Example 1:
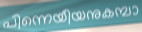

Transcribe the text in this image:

പിന്നെയീയനുകമ്പാ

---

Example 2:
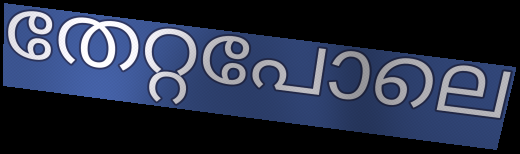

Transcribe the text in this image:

തേറ്റപോലെ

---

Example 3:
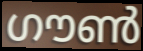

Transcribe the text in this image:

ഗൗൺ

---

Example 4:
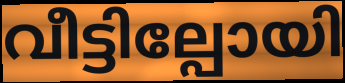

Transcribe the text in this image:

വീട്ടില്പോയി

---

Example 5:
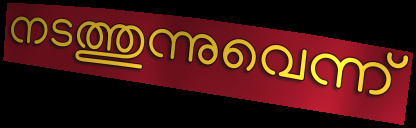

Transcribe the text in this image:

നടത്തുന്നുവെന്ന്